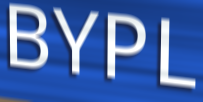
BYPL